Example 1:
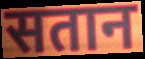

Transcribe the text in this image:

सतान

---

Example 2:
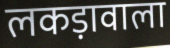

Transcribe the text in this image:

लकड़ावाला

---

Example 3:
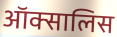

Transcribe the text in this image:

ऑक्सालिस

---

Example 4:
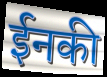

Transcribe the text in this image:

ईनकी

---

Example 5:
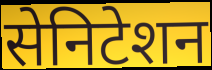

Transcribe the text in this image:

सेनिटेशन